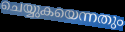
ചെയ്യുകയെന്നതും